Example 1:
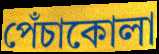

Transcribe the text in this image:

পেঁচাকোলা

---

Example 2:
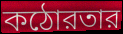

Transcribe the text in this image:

কঠোরতার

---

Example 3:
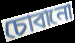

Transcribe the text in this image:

চোবানো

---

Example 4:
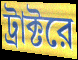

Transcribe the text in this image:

ট্রাক্টরে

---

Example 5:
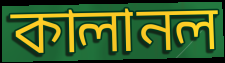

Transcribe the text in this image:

কালানল